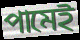
পামেই